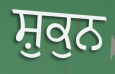
ਸ਼ੁਕੁਨ